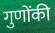
गुणोंकी